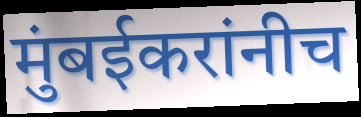
मुंबईकरांनीच